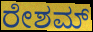
ರೇಶಮ್